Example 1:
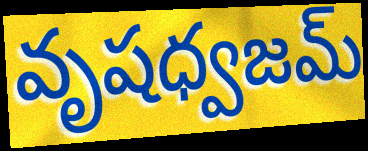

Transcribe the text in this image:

వృషధ్వజమ్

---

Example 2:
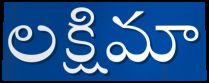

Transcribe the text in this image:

లక్షిమా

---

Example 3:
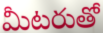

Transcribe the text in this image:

మీటరుతో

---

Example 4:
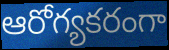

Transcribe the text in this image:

ఆరోగ్యకరంగా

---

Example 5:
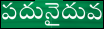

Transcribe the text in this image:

పదునైదువ